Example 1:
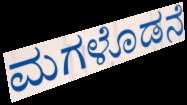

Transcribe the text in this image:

ಮಗಳೊಡನೆ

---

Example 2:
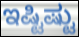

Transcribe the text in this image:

ಇಷ್ಟಿಷ್ಟು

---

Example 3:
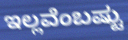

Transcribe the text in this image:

ಇಲ್ಲವೆಂಬಷ್ಟು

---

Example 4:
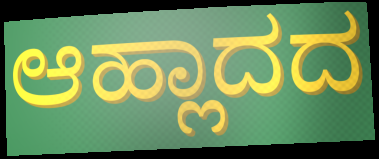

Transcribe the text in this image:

ಆಹ್ಲಾದದ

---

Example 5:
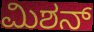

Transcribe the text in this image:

ಮಿಶನ್